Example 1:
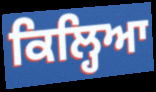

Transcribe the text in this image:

ਕਿਲ੍ਹਿਆ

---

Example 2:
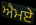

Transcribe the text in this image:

ਐਮਏ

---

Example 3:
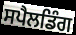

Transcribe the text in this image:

ਸਪੈਲਡਿੰਗ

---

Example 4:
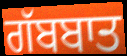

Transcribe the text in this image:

ਗੱਬਬਾਤ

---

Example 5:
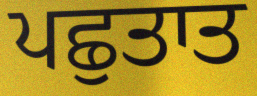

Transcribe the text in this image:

ਪਛੁਤਾਤ